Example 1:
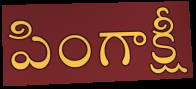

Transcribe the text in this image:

పింగాక్షీ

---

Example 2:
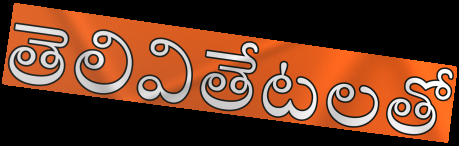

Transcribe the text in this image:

తెలివితేటలతో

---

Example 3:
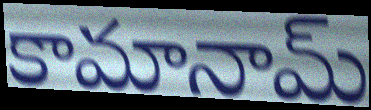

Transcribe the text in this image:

కామానామ్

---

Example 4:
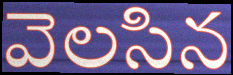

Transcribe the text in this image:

వెలసిన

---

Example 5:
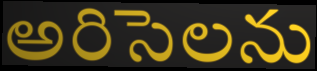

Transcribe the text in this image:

అరిసెలను